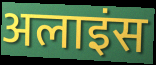
अलाइंस